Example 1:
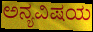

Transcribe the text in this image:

ಅನ್ಯವಿಷಯ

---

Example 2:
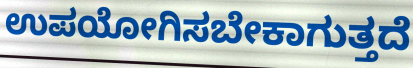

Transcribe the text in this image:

ಉಪಯೋಗಿಸಬೇಕಾಗುತ್ತದೆ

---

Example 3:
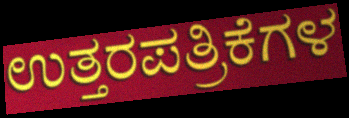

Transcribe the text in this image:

ಉತ್ತರಪತ್ರಿಕೆಗಳ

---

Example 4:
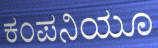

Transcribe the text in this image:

ಕಂಪನಿಯೂ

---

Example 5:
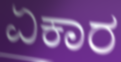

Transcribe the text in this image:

ಏಕಾರ